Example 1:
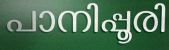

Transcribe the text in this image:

പാനിപ്പൂരി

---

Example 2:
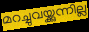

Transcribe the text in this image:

മറച്ചുവയ്ക്കുന്നില്ല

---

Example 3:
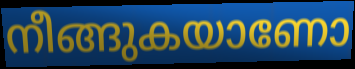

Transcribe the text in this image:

നീങ്ങുകയാണോ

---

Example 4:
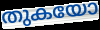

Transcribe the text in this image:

തുകയോ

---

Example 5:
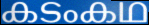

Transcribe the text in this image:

കടംകഥ